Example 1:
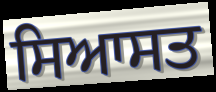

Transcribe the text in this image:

ਸਿਆਸਤ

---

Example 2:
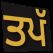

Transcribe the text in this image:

ਤਪੱ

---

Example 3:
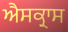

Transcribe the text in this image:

ਐਸਕ੍ਰਾਸ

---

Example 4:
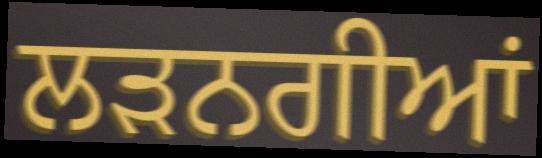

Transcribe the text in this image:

ਲੜਨਗੀਆਂ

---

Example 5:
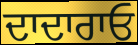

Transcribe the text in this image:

ਦਾਦਾਰਾਓ